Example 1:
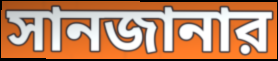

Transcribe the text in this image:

সানজানার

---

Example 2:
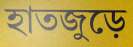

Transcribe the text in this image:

হাতজুড়ে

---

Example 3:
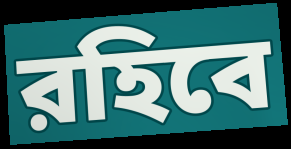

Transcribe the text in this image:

রহিবে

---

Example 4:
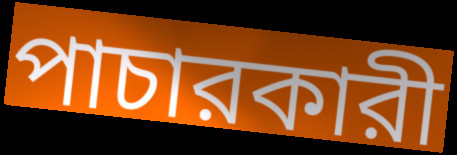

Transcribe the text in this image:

পাচারকারী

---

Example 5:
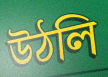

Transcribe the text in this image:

উঠলি